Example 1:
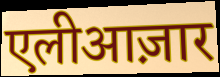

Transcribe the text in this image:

एलीआज़ार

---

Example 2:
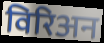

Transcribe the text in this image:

विरिअन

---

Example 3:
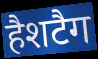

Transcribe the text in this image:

हैशटैग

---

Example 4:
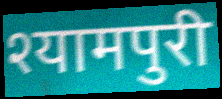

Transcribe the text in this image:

श्यामपुरी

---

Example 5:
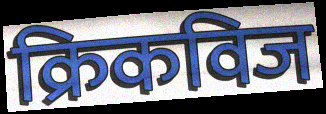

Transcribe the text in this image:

क्रिकविज